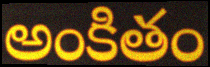
అంకితం